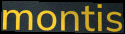
montis